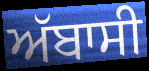
ਅੱਬਾਸੀ